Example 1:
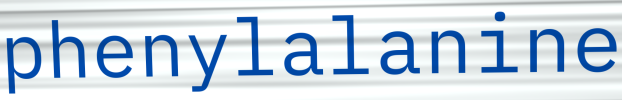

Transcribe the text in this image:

phenylalanine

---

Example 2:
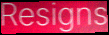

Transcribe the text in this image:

Resigns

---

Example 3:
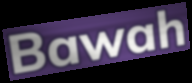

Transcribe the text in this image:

Bawah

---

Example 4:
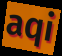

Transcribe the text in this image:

aqi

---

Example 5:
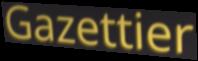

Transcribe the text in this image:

Gazettier